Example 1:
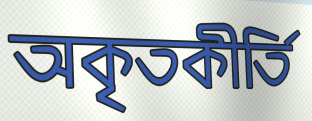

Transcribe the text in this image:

অকৃতকীর্তি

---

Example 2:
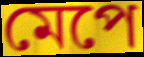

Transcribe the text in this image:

মেপে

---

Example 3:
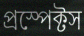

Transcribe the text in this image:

প্রস্পেক্টস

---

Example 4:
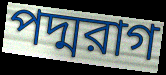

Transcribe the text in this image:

পদ্মরাগ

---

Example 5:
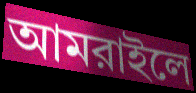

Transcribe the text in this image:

আমরাইলে